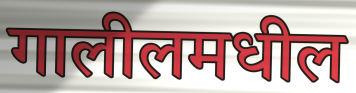
गालीलमधील